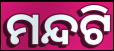
ମନ୍ଦଟି